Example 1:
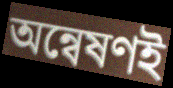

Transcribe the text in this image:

অন্বেষণই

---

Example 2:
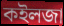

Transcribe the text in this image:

কইলজা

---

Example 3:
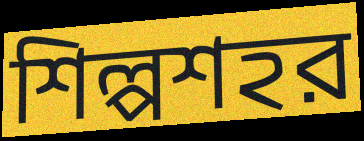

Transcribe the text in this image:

শিল্পশহর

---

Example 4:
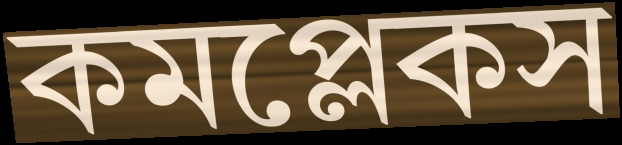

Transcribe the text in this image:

কমপ্লেকস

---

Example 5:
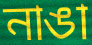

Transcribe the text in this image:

নাঙা